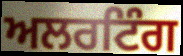
ਅਲਰਟਿੰਗ